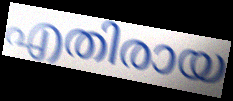
എതിരായ